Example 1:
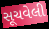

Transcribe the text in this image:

સૂચવેલી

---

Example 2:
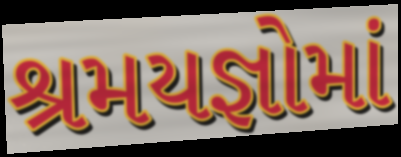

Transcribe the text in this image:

શ્રમયજ્ઞોમાં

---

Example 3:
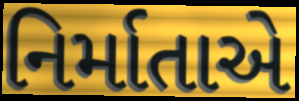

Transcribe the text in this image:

નિર્માતાએ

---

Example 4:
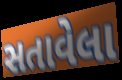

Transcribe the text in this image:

સતાવેલા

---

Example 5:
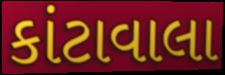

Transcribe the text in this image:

કાંટાવાલા